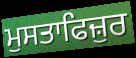
ਮੁਸਤਾਫਿਜ਼ੁਰ